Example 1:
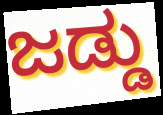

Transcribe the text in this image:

ಜಡ್ಡು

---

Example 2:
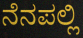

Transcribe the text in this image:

ನೆನಪಲ್ಲಿ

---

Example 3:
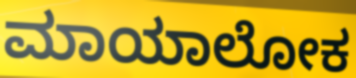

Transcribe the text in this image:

ಮಾಯಾಲೋಕ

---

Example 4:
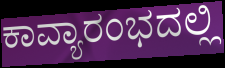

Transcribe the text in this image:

ಕಾವ್ಯಾರಂಭದಲ್ಲಿ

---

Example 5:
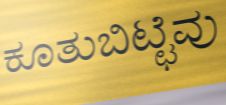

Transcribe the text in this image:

ಕೂತುಬಿಟ್ಟೆವು